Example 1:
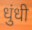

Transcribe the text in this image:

धुंधी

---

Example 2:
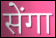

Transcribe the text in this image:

सेंगा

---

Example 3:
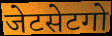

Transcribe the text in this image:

जेटसेटगो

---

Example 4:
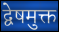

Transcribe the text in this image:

द्वेषमुक्त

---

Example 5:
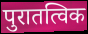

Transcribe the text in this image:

पुरातत्विक